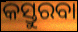
କସ୍ତୁରବା